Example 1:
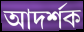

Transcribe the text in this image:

আদৰ্শক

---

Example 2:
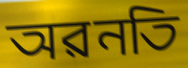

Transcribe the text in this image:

অৱনতি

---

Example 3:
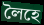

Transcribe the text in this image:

লৈহে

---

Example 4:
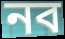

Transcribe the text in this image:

নব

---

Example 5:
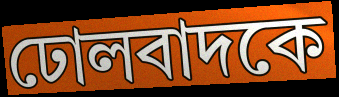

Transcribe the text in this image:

ঢোলবাদকে